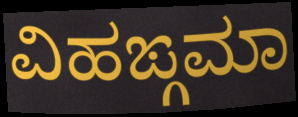
ವಿಹಙ್ಗಮಾ